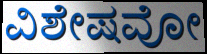
ವಿಶೇಷವೋ